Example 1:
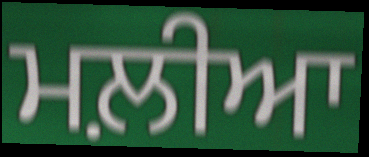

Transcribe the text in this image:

ਮਲ਼ੀਆ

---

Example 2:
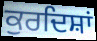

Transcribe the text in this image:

ਕੁਰਦਿਸ਼ਾਂ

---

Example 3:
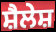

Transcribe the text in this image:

ਸ਼ੈਲੇਸ਼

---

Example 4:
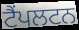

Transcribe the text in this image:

ਟੈਂਪਲਟਨ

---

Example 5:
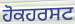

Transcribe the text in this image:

ਹੋਕਹਰਸਟ